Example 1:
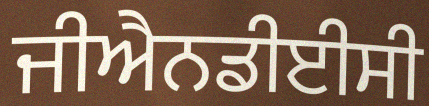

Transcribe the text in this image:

ਜੀਐਨਡੀਈਸੀ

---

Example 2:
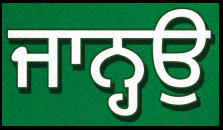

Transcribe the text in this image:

ਜਾਨ੍ਹਉ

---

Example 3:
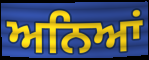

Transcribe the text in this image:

ਅਨਿਆਂ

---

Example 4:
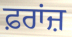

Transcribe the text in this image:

ਫ਼ਰਾਂਜ਼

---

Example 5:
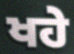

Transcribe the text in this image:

ਖਹੇ